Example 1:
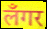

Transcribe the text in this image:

लँगर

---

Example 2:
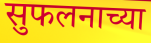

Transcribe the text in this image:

सुफलनाच्या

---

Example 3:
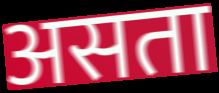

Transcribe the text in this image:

असता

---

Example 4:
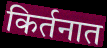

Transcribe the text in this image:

किर्तनात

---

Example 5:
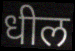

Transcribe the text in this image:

धील